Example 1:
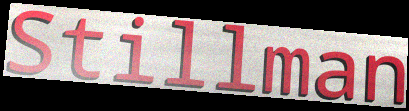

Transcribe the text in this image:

Stillman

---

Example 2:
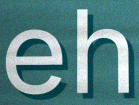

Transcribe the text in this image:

eh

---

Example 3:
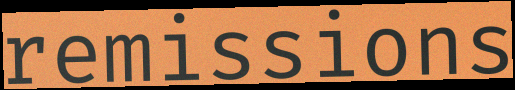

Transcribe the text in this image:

remissions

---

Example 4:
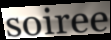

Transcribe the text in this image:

soiree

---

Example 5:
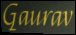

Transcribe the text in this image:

Gaurav